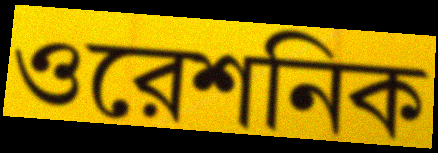
ওরেশনিক